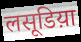
लसूडिय़ा